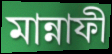
মান্নাফী